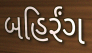
બહિર્રંગ